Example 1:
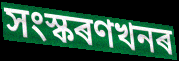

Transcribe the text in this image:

সংস্কৰণখনৰ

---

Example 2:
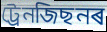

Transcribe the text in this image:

ট্ৰেনজিছনৰ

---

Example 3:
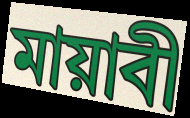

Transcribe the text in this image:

মায়াবী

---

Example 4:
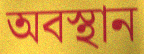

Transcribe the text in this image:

অবস্থান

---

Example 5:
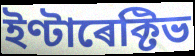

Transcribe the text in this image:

ইণ্টাৰেক্টিভ